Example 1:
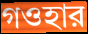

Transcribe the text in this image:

গওহার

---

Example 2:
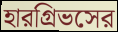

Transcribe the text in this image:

হারগ্রিভসের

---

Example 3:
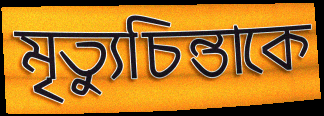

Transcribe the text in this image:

মৃত্যুচিন্তাকে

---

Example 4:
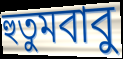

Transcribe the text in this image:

হুতুমবাবু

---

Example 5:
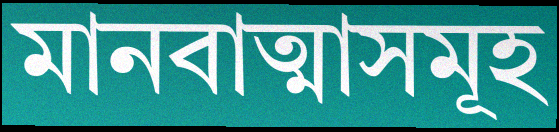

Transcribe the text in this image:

মানবাত্মাসমূহ